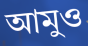
আমুও